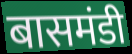
बासमंडी